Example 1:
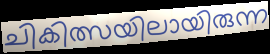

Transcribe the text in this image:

ചികിത്സയിലായിരുന്ന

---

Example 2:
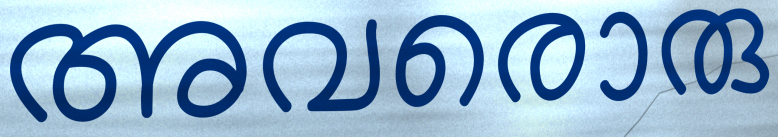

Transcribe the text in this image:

അവരൊരു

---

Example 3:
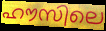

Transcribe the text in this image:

ഹൗസിലെ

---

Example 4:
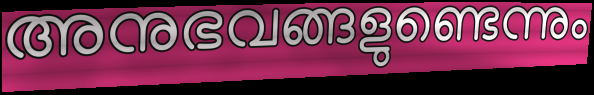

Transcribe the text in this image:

അനുഭവങ്ങളുണ്ടെന്നും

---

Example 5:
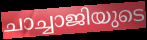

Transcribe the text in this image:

ചാച്ചാജിയുടെ